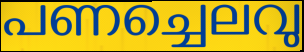
പണച്ചെലവു